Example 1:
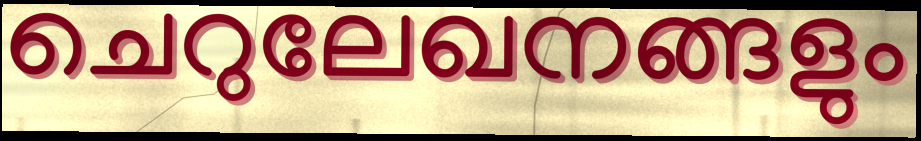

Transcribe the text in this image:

ചെറുലേഖനങ്ങളും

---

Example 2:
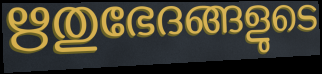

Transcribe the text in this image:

ഋതുഭേദങ്ങളുടെ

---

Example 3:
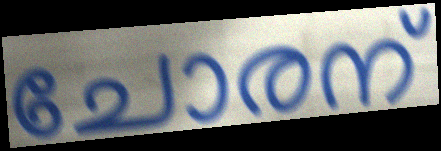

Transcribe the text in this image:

ചോരന്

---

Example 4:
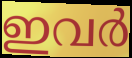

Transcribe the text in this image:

ഇവർ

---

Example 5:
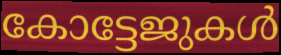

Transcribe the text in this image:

കോട്ടേജുകൾ